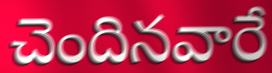
చెందినవారే